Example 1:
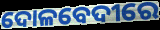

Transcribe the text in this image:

ଦୋଳବେଦୀରେ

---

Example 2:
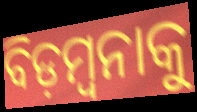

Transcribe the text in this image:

ବିଡ଼ମ୍ୱନାକୁ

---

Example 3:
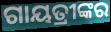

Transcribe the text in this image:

ଗାୟତ୍ରୀଙ୍କର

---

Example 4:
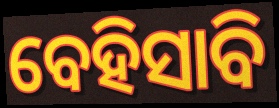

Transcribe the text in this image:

ବେହିସାବି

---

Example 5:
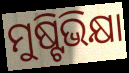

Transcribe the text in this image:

ମୁଷ୍ଟିଭିକ୍ଷା